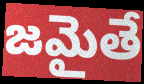
జమైతే